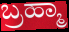
ಬ್ರಹ್ಮಾ